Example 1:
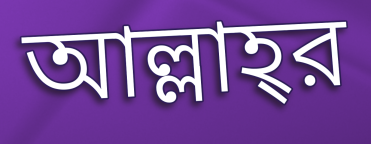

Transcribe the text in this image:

আল্লাহ্‌র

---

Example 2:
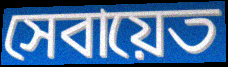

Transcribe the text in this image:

সেবায়েত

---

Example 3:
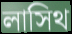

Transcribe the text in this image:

লাসিথ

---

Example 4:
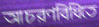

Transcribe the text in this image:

আচরণবিধিতে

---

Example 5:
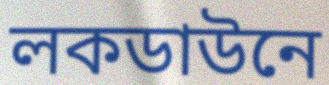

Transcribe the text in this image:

লকডাউনে